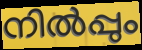
നിൽപ്പും